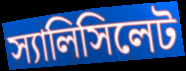
স্যালিসিলেট